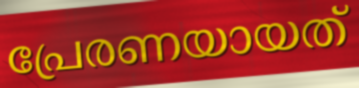
പ്രേരണയായത്